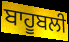
ਬਾਹੂਬਲੀ